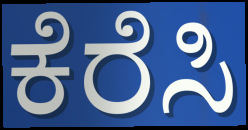
ಕೆರೆಸಿ